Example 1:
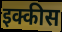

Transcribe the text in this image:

इक्कीस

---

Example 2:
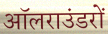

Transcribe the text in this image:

ऑलराउंडरों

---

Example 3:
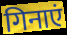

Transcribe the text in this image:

गिनाएं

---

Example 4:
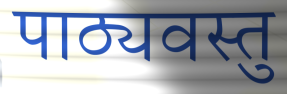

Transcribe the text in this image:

पाठ्यवस्तु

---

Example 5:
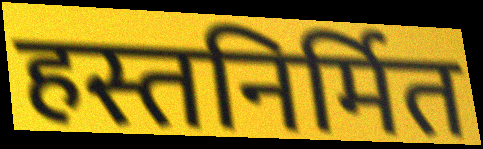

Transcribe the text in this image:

हस्तनिर्मित